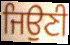
ਜਿਉਣੀ